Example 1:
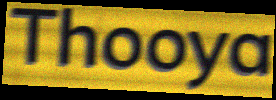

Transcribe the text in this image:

Thooya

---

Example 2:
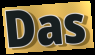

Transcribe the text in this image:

Das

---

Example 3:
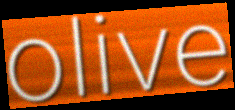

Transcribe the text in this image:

olive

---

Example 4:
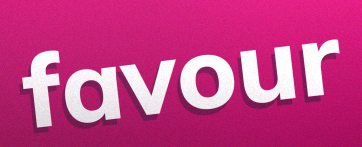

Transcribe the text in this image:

favour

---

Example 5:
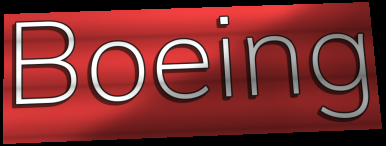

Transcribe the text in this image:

Boeing